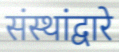
संस्थांद्वारे